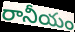
రానీయం